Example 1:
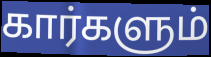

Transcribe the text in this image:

கார்களும்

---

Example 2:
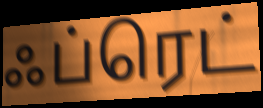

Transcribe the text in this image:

ஃப்ரெட்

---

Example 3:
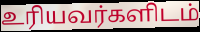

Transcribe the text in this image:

உரியவர்களிடம்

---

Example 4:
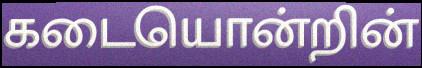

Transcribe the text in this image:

கடையொன்றின்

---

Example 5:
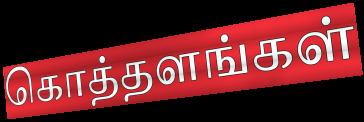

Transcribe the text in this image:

கொத்தளங்கள்